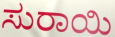
ಸುರಾಯಿ